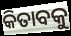
କିତାବକୁ